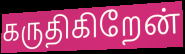
கருதிகிறேன்